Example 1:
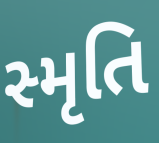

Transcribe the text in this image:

સ્મૃતિ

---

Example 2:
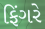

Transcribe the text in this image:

ફિંગરે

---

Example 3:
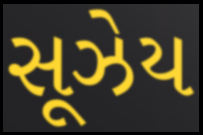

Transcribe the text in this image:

સૂઝેય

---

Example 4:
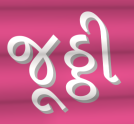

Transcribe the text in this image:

જૂઠ્ઠી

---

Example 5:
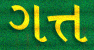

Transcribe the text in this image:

ગત્ત